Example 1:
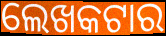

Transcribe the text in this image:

ଲେଖକଟାର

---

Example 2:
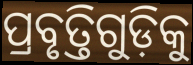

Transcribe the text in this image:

ପ୍ରବୃତ୍ତିଗୁଡ଼ିକୁ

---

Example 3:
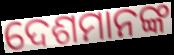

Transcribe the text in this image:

ଦେଶମାନଙ୍କ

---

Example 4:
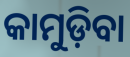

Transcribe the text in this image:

କାମୁଡ଼ିବା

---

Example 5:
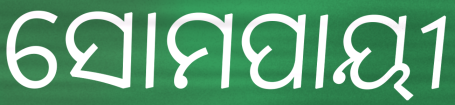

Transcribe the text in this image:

ସୋମପାୟୀ